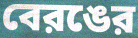
বেরঙের